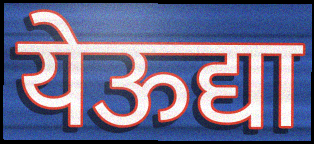
येऊद्या